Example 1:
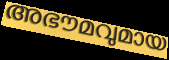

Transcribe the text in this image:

അഭൗമവുമായ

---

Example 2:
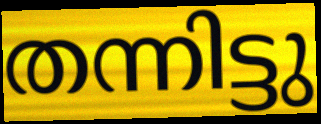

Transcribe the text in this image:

തന്നിട്ടു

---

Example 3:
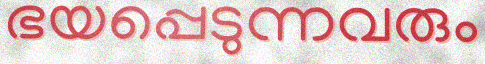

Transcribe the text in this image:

ഭയപ്പെടുന്നവരും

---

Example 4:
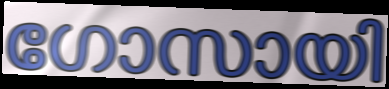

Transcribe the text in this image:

ഗോസായി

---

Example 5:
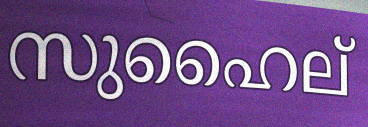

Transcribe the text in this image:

സുഹൈല്